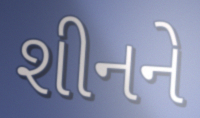
શીનને